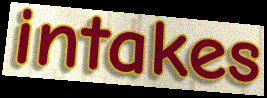
intakes